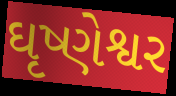
ઘૃષ્ણેશ્વર